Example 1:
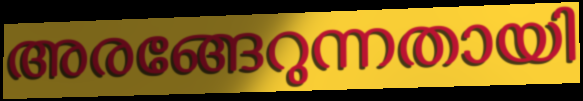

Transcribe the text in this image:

അരങ്ങേറുന്നതായി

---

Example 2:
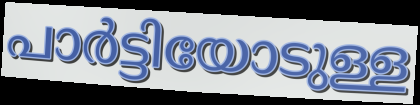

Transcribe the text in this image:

പാർട്ടിയോടുള്ള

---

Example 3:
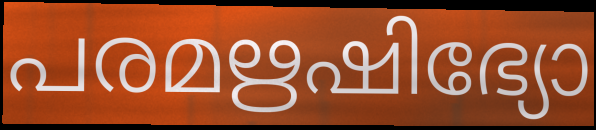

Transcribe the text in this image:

പരമഋഷിഭ്യോ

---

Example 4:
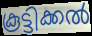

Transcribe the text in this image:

കൂട്ടിക്കൽ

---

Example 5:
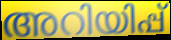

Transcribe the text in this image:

അറിയിപ്പ്